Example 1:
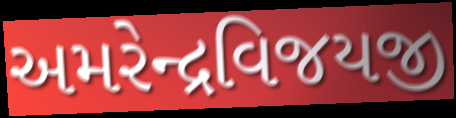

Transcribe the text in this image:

અમરેન્દ્રવિજયજી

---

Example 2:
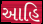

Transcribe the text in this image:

આહિ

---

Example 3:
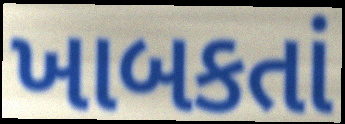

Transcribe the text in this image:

ખાબકતાં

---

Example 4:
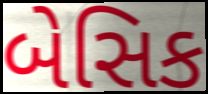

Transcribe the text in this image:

બેસિક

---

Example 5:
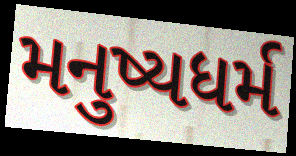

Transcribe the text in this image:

મનુષ્યધર્મ